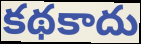
కథకాదు